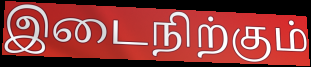
இடைநிற்கும்